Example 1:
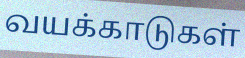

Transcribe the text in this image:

வயக்காடுகள்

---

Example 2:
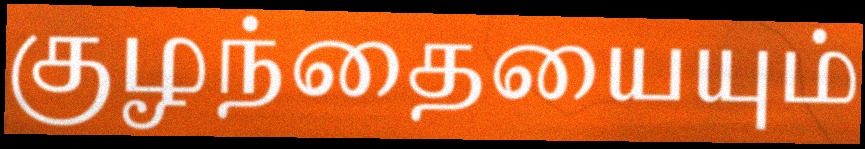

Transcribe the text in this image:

குழந்தையையும்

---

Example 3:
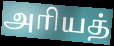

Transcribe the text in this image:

அரியத்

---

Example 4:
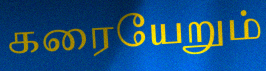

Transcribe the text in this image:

கரையேறும்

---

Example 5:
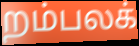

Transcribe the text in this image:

றம்பலக்